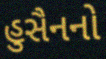
હુસૈનનો